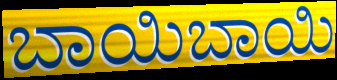
ಬಾಯಿಬಾಯಿ